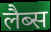
लैब्स